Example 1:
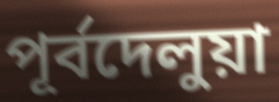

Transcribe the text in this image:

পূর্বদেলুয়া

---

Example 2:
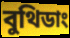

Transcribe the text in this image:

বুথিডাং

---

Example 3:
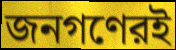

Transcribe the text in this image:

জনগণেরই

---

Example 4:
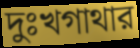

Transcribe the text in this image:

দুঃখগাথার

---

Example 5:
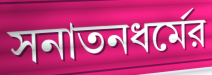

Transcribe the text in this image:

সনাতনধর্মের